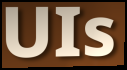
UIs